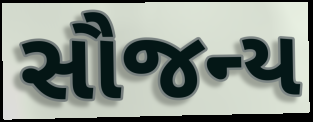
સૌજન્ય